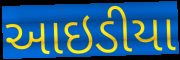
આઇડીયા